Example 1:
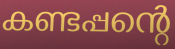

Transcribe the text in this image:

കണ്ടപ്പന്റെ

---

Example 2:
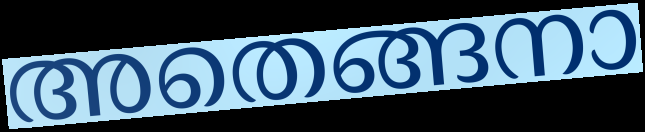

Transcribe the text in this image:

അതെങ്ങനാ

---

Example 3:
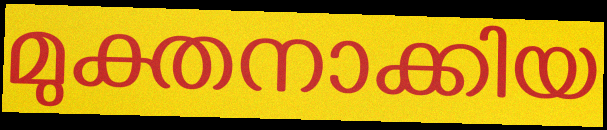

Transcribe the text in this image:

മുക്തനാക്കിയ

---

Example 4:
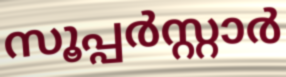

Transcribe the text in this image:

സൂപ്പർസ്റ്റാർ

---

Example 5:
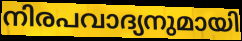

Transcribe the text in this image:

നിരപവാദ്യനുമായി